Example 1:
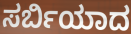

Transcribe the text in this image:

ಸರ್ಬಿಯಾದ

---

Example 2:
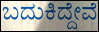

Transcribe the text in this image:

ಬದುಕಿದ್ದೇವೆ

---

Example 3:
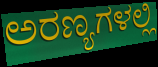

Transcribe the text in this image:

ಅರಣ್ಯಗಳಲ್ಲಿ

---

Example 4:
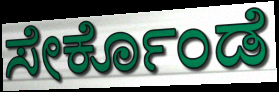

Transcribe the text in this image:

ಸೇರ್ಕೊಂಡೆ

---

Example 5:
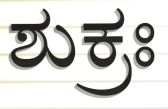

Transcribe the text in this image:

ಶುಕ್ರಃ